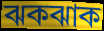
ঝকঝাক